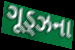
ગૂડ્ઝના